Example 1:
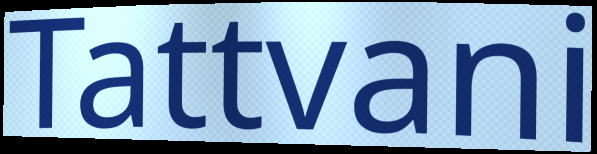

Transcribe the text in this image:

Tattvani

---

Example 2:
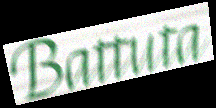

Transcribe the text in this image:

Battuta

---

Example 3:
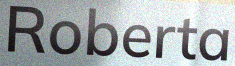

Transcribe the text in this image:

Roberta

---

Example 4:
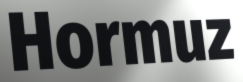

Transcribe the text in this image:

Hormuz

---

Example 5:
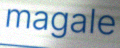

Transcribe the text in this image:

magale